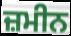
ਜ਼ਮੀਨ